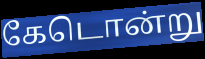
கேடொன்று